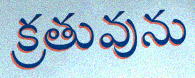
క్రతువును